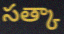
సత్కా